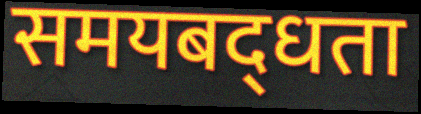
समयबद्धता